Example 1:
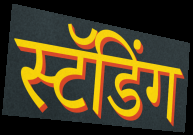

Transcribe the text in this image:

स्टॅडिंग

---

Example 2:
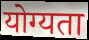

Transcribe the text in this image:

योग्यता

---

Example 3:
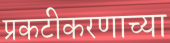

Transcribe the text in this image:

प्रकटीकरणाच्या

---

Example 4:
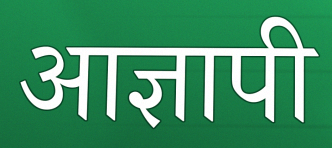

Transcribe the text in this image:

आज्ञापी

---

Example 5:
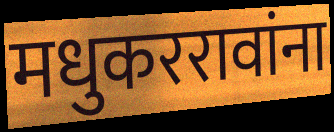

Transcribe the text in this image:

मधुकररावांना